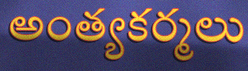
అంత్యకర్మలు